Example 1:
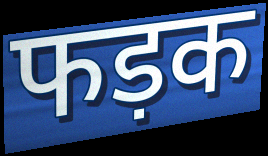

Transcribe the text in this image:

फड़क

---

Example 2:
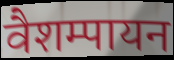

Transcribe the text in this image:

वैशम्पायन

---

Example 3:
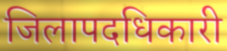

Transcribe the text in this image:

जिलापदधिकारी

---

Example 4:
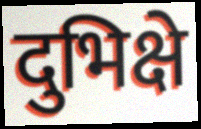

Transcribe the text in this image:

दुभिक्षे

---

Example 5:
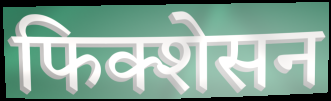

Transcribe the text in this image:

फिक्शेसन